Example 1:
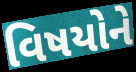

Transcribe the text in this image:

વિષયોને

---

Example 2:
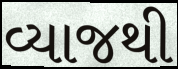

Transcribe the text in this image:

વ્યાજથી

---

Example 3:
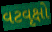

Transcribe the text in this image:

વટવૃક્ષો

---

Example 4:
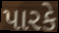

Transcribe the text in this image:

પારકે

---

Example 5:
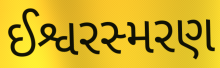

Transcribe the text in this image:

ઈશ્વરસ્મરણ